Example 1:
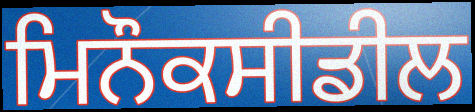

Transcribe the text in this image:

ਮਿਨੌਕਸੀਡੀਲ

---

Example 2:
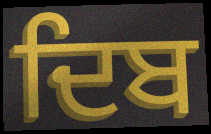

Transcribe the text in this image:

ਦਿਬ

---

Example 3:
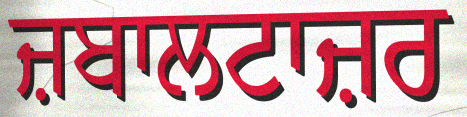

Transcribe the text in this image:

ਜ਼ਬਾਲਟਾਜ਼ਰ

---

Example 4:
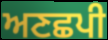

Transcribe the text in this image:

ਅਣਛਪੀ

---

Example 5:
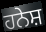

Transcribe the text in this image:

ਹਨੇਸ਼